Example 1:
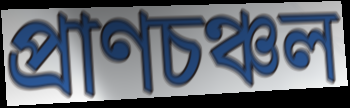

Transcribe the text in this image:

প্ৰাণচঞ্চল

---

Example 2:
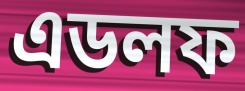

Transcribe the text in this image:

এডলফ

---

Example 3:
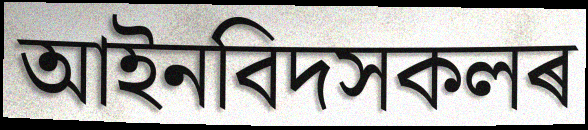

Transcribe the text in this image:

আইনবিদসকলৰ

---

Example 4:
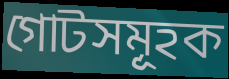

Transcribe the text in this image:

গোটসমূহক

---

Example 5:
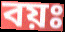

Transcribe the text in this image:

বয়ঃ